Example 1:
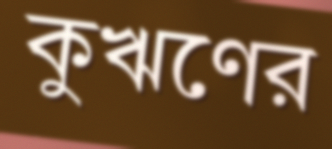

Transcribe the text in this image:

কুঋণের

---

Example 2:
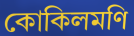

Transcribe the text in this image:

কোকিলমণি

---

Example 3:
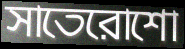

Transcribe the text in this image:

সাতেরোশো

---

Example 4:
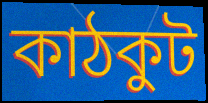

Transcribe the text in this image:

কাঠকুট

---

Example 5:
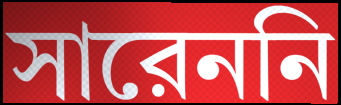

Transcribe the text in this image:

সারেননি